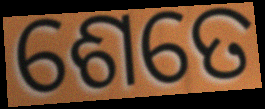
ଶେତେ